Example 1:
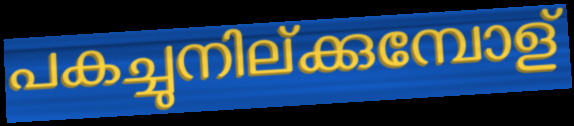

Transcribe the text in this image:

പകച്ചുനില്ക്കുമ്പോള്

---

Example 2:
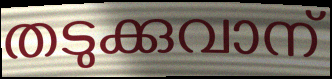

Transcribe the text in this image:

തടുക്കുവാന്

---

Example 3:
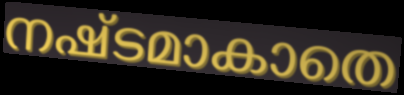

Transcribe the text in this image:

നഷ്‌ടമാകാതെ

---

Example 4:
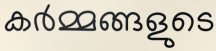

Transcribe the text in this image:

കർമ്മങ്ങളുടെ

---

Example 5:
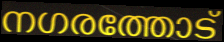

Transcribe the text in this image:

നഗരത്തോട്